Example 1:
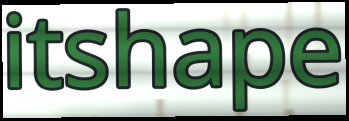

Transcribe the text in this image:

itshape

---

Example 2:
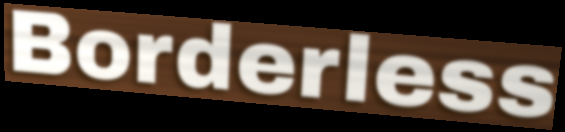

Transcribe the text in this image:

Borderless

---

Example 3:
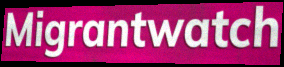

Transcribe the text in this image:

Migrantwatch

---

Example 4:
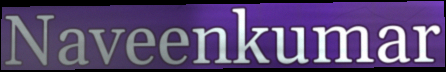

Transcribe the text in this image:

Naveenkumar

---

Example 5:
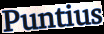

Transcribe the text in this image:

Puntius